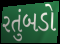
રતુંબડો